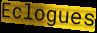
Eclogues